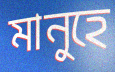
মানুহে